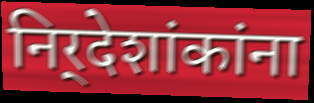
निर्देशांकांना